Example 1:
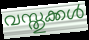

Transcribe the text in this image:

വസ്തുക്കൾ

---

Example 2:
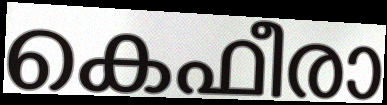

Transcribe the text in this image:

കെഫീരാ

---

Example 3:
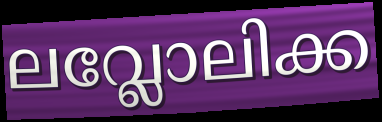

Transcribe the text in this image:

ലവ്ലോലിക്ക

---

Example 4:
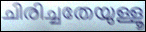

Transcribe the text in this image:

ചിരിച്ചതേയുള്ളൂ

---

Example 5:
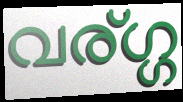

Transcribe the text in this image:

വര്ഗ്ഗ